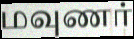
மவுணர்